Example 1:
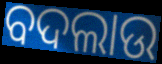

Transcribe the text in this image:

ବଦଲାଉ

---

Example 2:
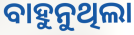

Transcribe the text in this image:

ବାହୁନୁଥିଲା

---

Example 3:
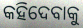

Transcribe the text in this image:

କହିଦେବାକୁ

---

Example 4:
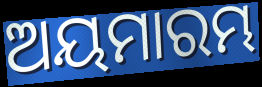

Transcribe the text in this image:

ଅୟମାରମ୍ଭ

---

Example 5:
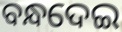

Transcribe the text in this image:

ବନ୍ଧଦେଇ